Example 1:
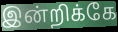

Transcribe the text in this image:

இன்றிக்கே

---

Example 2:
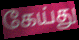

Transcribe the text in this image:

கேய்து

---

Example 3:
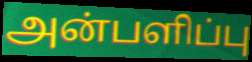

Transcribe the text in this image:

அன்பளிப்பு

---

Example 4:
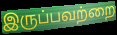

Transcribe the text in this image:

இருப்பவற்றை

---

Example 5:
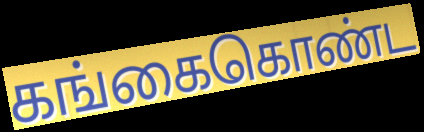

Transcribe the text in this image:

கங்கைகொண்ட